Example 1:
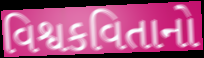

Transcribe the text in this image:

વિશ્વકવિતાનો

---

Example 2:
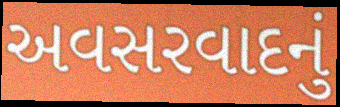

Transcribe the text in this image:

અવસરવાદનું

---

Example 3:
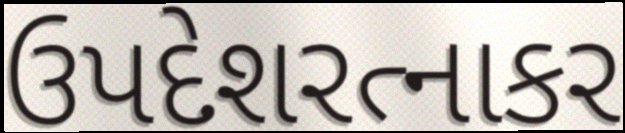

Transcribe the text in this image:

ઉપદેશરત્નાકર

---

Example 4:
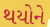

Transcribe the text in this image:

થયોને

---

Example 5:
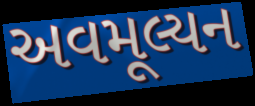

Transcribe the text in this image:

અવમૂલ્યન